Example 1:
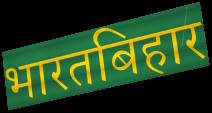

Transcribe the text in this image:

भारतबिहार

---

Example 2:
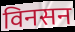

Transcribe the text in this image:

विनसन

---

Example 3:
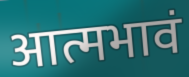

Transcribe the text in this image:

आत्मभावं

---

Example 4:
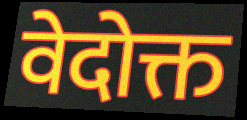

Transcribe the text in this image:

वेदोक्त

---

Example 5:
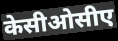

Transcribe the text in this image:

केसीओसीए